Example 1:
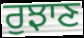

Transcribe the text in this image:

ਰੁਝਾਣ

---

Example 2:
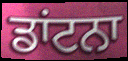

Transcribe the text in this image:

ਡਾਂਟਨਾ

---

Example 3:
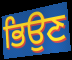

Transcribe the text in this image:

ਭਿਉਣ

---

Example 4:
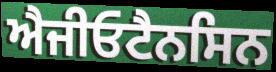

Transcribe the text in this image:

ਐਜੀਓਟੈਨਸਿਨ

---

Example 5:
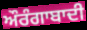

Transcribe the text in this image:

ਔਰੰਗਾਬਾਦੀ